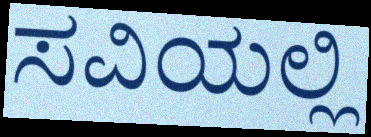
ಸವಿಯಲ್ಲಿ